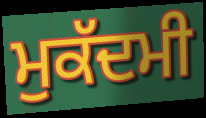
ਮੁਕੱਦਮੀ